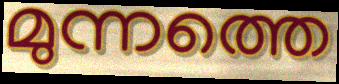
മുന്നത്തെ